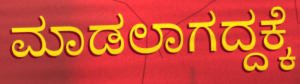
ಮಾಡಲಾಗದ್ದಕ್ಕೆ